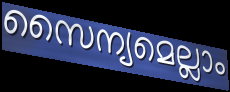
സൈന്യമെല്ലാം